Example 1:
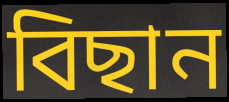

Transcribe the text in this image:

বিছান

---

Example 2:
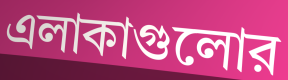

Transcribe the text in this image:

এলাকাগুলোর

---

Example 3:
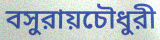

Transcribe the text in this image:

বসুরায়চৌধুরী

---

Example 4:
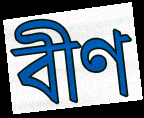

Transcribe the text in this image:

বীণ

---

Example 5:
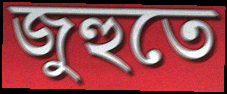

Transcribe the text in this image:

জুহুতে